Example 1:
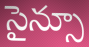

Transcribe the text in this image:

సైన్సూ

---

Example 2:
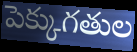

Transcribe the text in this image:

పెక్కుగతుల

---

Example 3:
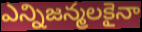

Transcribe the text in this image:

ఎన్నిజన్మలకైనా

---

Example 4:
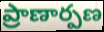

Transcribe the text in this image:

ప్రాణార్పణ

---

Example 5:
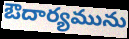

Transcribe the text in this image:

ఔదార్యమును